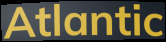
Atlantic